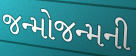
જન્મોજન્મની